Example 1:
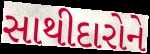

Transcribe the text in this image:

સાથીદારોને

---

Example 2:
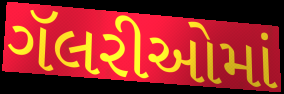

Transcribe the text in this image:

ગૅલરીઓમાં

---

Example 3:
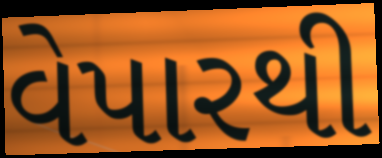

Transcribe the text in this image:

વેપારથી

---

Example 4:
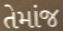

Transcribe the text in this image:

તેમાંજ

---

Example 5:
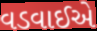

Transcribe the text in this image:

વડવાઈએ